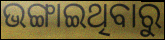
ଭଙ୍ଗାଇଥିବାରୁ